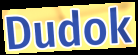
Dudok